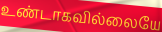
உண்டாகவில்லையே